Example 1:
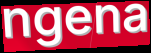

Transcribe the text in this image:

ngena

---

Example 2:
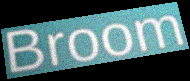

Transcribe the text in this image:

Broom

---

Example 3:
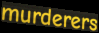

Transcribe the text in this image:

murderers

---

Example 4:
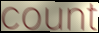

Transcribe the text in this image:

count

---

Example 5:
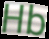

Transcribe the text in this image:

Hb